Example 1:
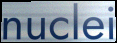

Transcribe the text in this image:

nuclei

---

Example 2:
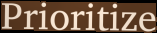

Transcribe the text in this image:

Prioritize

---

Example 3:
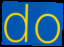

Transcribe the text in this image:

do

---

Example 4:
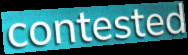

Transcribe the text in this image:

contested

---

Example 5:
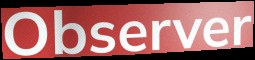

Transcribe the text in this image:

Observer